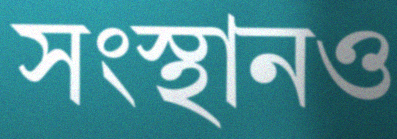
সংস্থানও